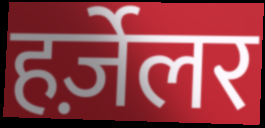
हर्ज़ेलर